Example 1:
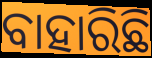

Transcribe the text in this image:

ବାହାରିଛି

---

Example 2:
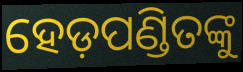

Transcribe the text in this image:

ହେଡ଼ପଣ୍ଡିତଙ୍କୁ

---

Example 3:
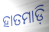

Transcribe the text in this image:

ହାତମାଡ଼ି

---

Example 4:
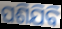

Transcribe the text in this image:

ପଶିଯିବି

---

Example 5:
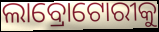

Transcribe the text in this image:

ଲାବ୍ରୋଟୋରୀକୁ